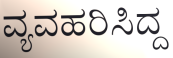
ವ್ಯವಹರಿಸಿದ್ದ